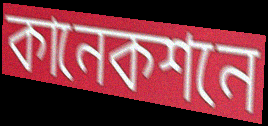
কানেকশনে